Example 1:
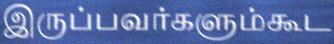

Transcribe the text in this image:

இருப்பவர்களும்கூட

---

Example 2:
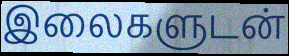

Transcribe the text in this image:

இலைகளுடன்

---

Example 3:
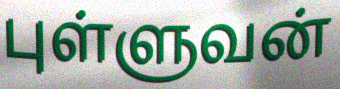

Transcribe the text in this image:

புள்ளுவன்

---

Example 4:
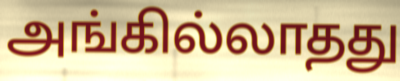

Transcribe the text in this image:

அங்கில்லாதது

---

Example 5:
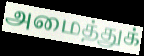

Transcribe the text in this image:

அமைத்துக்